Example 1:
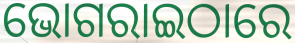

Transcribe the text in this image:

ଭୋଗରାଇଠାରେ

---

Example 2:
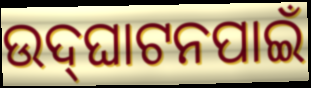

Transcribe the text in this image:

ଉଦ୍‌ଘାଟନପାଇଁ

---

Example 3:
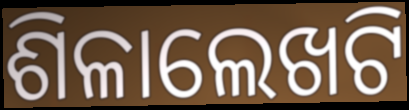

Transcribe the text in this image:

ଶିଳାଲେଖଟି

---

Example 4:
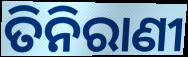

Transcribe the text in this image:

ତିନିରାଣୀ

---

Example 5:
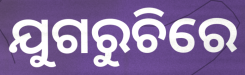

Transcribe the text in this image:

ଯୁଗରୁଚିରେ